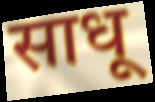
साधू